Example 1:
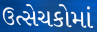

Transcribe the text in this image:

ઉત્સેચકોમાં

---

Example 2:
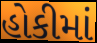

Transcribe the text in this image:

હોકીમાં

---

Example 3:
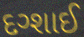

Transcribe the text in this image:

દગ્શાઈ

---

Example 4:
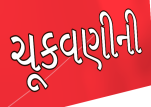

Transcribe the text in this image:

ચૂકવણીની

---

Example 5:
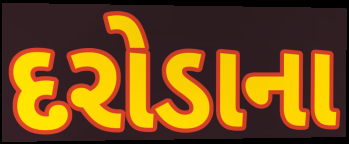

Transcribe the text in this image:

દરોડાના